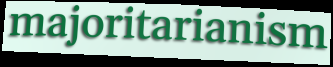
majoritarianism